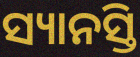
ସ୍ୟାନସ୍ତି